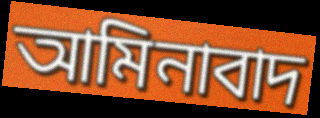
আমিনাবাদ